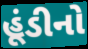
હૂંડીનો